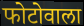
फोटोवाला